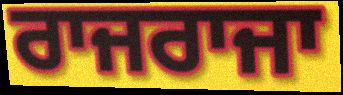
ਰਾਜਰਾਜਾ